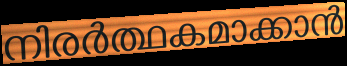
നിരർത്ഥകമാക്കാൻ